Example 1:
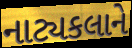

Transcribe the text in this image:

નાટ્યકલાને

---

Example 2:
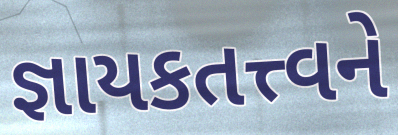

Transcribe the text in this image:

જ્ઞાયકતત્ત્વને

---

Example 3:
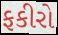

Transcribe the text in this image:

ફકીરો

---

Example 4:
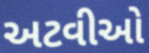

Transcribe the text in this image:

અટવીઓ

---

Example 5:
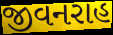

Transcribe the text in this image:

જીવનરાહ